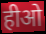
हीओ